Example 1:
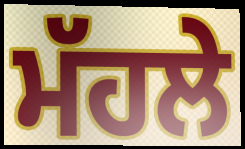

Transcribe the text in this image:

ਮੱਹਲੇ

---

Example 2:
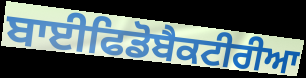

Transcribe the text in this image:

ਬਾਈਫਿਡੋਬੈਕਟੀਰੀਆ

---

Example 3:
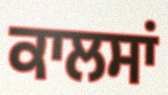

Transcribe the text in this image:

ਕਾਲਸਾਂ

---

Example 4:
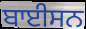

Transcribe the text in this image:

ਬਾਈਸਨ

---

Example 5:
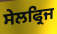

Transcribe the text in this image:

ਸੇਲਫ੍ਰਿਜ